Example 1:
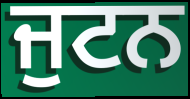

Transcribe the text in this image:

ਜੁਟਨ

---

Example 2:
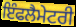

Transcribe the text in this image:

ਇੰਫਲੈਮੇਟਰੀ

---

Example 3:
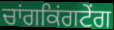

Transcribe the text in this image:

ਚਾਂਗਕਿਂਗਟੇਂਗ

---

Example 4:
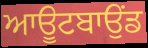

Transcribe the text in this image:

ਆਊਟਬਾਉਂਡ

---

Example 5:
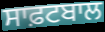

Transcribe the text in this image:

ਸਾਫ਼ਟਬਾਲ